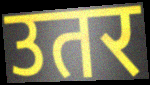
उतर